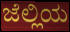
ಜೆಲ್ಲಿಯ